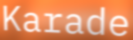
Karade